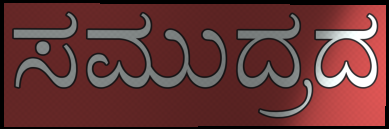
ಸಮುದ್ರದ